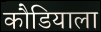
कौडियाला